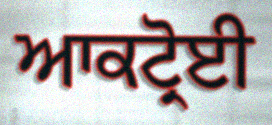
ਆਕਟ੍ਰੋਈ